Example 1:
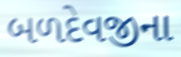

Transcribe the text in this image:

બળદેવજીના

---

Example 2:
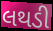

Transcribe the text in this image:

લથડી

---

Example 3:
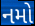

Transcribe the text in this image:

નમો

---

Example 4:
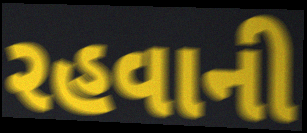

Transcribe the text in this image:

રહવાની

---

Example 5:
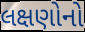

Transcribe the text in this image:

લક્ષણોનો